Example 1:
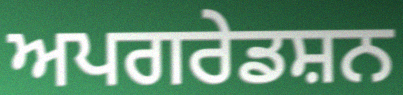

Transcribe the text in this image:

ਅਪਗਰੇਡਸ਼ਨ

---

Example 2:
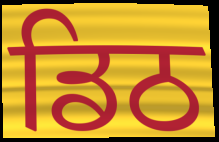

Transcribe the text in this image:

ਡਿਠ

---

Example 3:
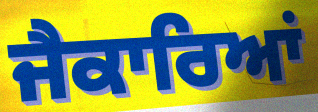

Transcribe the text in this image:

ਜੈਕਾਰਿਆਂ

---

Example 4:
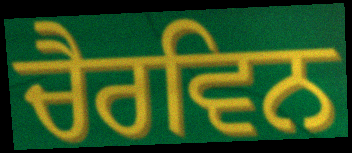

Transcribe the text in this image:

ਚੈਰਵਿਨ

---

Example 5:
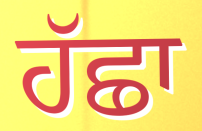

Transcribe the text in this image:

ਹੱਛਾ